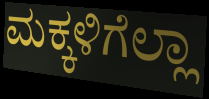
ಮಕ್ಕಳಿಗೆಲ್ಲಾ